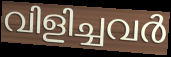
വിളിച്ചവർ